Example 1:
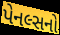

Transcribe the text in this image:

પેનલ્સનો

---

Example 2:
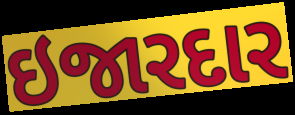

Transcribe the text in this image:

ઇજારદાર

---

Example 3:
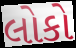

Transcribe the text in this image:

લોકો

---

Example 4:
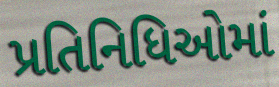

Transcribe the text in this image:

પ્રતિનિધિઓમાં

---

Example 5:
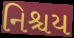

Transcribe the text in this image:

નિશ્ચય